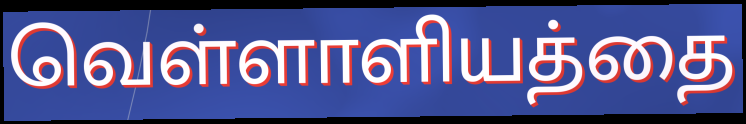
வெள்ளாளியத்தை